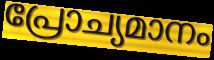
പ്രോച്യമാനം